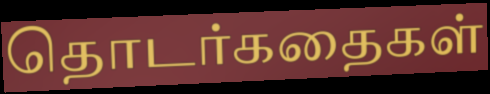
தொடர்கதைகள்